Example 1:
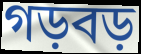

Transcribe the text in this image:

গড়বড়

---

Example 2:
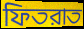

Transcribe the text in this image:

ফিতরাত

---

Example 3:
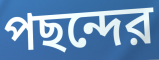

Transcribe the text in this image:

পছন্দের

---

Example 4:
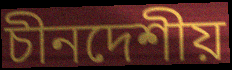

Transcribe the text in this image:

চীনদেশীয়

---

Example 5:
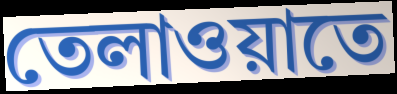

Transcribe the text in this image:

তেলাওয়াতে